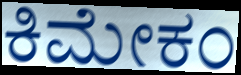
ಕಿಮೇಕಂ